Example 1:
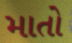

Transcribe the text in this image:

માતો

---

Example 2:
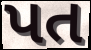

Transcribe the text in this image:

પત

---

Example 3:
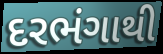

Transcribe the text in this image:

દરભંગાથી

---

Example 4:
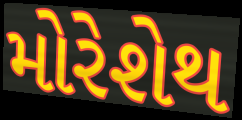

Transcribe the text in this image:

મોરેશેથ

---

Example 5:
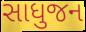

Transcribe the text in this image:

સાધુજન